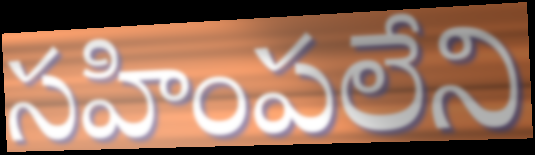
సహింపలేని